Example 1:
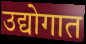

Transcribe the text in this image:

उद्योगात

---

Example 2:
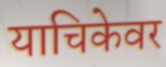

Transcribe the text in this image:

याचिकेवर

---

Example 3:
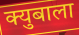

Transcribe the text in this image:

क्युबाला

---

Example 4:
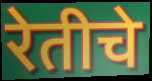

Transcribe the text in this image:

रेतीचे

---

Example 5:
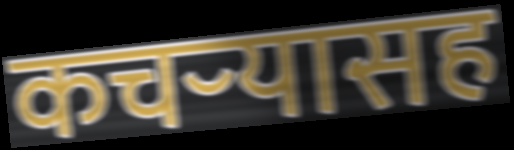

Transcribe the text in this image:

कचऱ्यासह